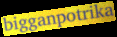
bigganpotrika